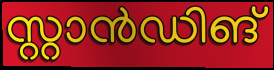
സ്റ്റാൻഡിങ്